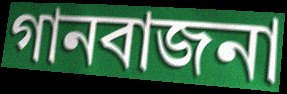
গানবাজনা